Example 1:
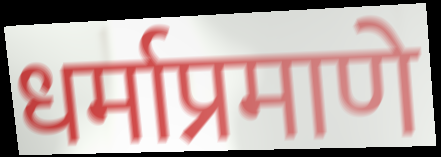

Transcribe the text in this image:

धर्माप्रमाणे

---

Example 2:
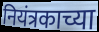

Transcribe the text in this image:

नियंत्रकाच्या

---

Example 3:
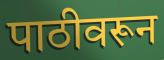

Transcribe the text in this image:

पाठीवरून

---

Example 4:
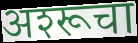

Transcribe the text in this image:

अश्रूचा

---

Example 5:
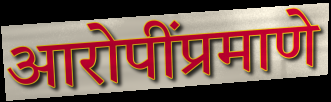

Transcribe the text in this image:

आरोपींप्रमाणे